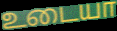
உடையா